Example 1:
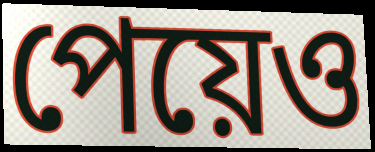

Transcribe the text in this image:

পেয়েও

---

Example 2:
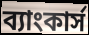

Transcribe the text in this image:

ব্যাংকার্স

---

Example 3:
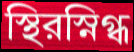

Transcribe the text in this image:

স্থিরস্নিগ্ধ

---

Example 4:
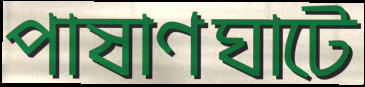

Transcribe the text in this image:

পাষাণঘাটে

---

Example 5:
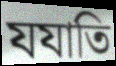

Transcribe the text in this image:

যযাতি